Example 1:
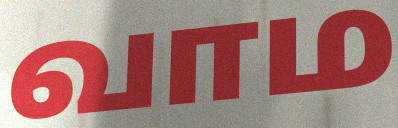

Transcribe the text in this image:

வாம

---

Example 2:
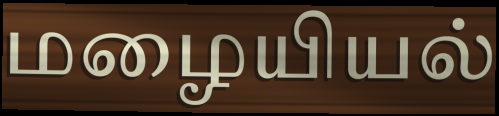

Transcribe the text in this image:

மழையியல்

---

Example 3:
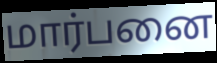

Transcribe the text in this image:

மார்பனை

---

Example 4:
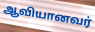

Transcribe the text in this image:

ஆவியானவர்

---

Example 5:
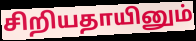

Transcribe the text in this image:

சிறியதாயினும்